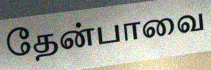
தேன்பாவை